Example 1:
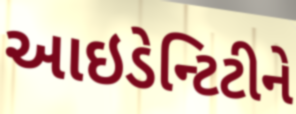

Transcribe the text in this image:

આઇડેન્ટિટીને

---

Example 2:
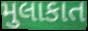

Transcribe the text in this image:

મુલાકાત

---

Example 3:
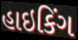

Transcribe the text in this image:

હાઇકિંગ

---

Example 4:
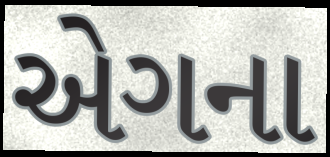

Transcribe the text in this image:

એગના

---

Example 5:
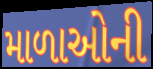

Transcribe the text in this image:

માળાઓની